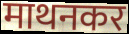
माथनकर